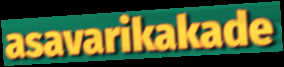
asavarikakade